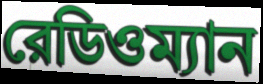
রেডিওম্যান